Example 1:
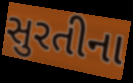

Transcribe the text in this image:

સુરતીના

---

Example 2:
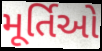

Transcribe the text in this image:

મૂર્તિઓ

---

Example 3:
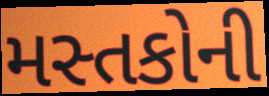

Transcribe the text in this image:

મસ્તકોની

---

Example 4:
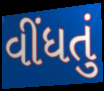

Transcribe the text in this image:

વીંધતું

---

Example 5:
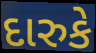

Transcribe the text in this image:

દારુકે